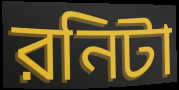
রনিটা